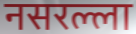
नसरल्ला